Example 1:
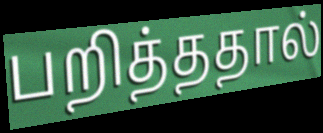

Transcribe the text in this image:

பறித்ததால்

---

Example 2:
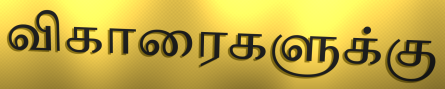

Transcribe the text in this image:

விகாரைகளுக்கு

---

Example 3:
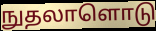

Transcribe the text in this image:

நுதலாளொடு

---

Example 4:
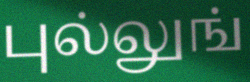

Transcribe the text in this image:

புல்லுங்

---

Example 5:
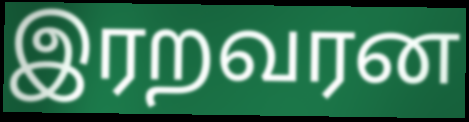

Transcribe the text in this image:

இரறவரன